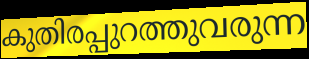
കുതിരപ്പുറത്തുവരുന്ന